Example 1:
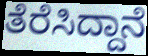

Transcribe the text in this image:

ತೆರೆಸಿದ್ದಾನೆ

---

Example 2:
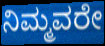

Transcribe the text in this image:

ನಿಮ್ಮವರೇ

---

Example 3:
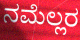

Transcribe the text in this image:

ನಮೆಲ್ಲರ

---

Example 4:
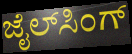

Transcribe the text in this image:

ಜೈಲ್‌ಸಿಂಗ್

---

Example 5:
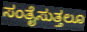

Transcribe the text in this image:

ಸಂತೈಸುತ್ತಲೂ